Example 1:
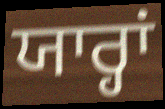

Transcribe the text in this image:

ਯਾਰ੍ਹਾਂ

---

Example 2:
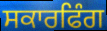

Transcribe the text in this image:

ਸਕਾਰਫਿੰਗ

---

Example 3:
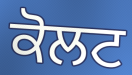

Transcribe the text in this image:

ਕੋਲਟ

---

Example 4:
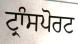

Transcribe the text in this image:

ਟ੍ਰਾੰਸਪੋਰਟ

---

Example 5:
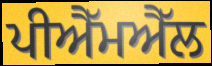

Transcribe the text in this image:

ਪੀਐੱਮਐੱਲ